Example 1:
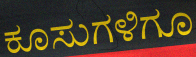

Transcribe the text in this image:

ಕೂಸುಗಳಿಗೂ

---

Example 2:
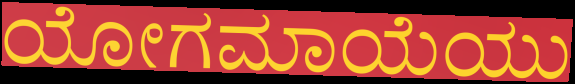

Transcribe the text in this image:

ಯೋಗಮಾಯೆಯು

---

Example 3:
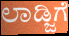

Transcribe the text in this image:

ಲಾಡ್ಜಿಗೆ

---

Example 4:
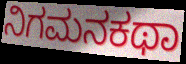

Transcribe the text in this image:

ನಿಗಮನಕಥಾ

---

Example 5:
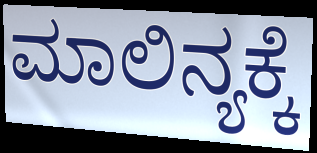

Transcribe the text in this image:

ಮಾಲಿನ್ಯಕ್ಕೆ